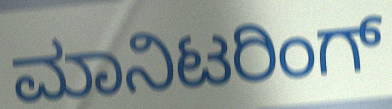
ಮಾನಿಟರಿಂಗ್